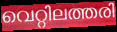
വെറ്റിലത്തരി